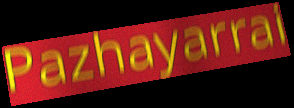
Pazhayarrai